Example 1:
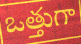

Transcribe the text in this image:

ఒత్తుగా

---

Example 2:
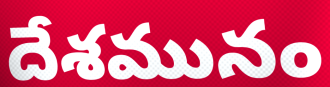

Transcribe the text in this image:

దేశమునం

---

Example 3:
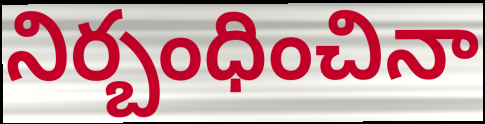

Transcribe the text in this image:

నిర్బంధించినా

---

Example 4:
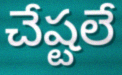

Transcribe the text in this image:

చేష్టలే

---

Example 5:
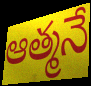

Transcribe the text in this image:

ఆత్మనే